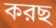
করছ